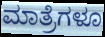
ಮಾತ್ರೆಗಳೂ